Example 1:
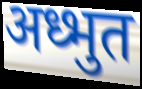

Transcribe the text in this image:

अध्भुत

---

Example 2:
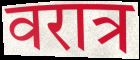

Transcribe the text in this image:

वरात्र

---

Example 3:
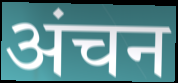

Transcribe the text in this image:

अंचन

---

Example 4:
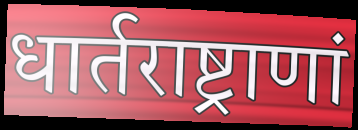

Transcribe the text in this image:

धार्तराष्ट्राणां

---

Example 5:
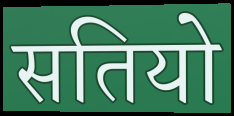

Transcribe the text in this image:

सतियो